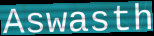
Aswasth